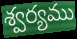
శ్వర్యము